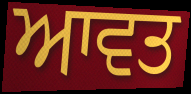
ਆਵਤ